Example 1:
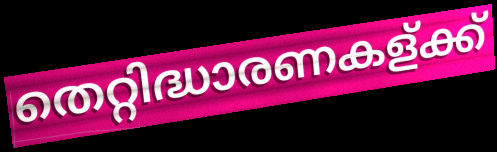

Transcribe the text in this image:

തെറ്റിദ്ധാരണകള്ക്ക്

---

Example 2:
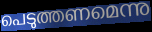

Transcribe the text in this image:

പെടുത്തണമെന്നു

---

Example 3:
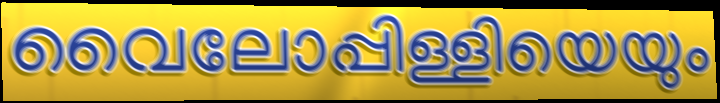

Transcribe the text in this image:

വൈലോപ്പിള്ളിയെയും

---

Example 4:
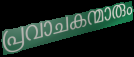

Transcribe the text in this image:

പ്രവാചകന്മാരും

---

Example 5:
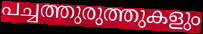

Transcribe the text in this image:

പച്ചത്തുരുത്തുകളും